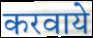
करवाये